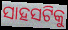
ସାହସଟିକୁ